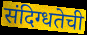
संदिग्धतेची